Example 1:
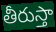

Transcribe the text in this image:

తీరుస్తా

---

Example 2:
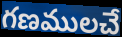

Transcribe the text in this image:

గణములచే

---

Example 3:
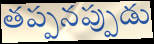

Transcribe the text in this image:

తప్పనప్పుడు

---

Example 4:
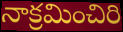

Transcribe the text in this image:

నాక్రమించిరి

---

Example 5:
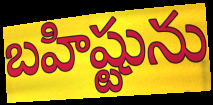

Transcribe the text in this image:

బహిష్టును